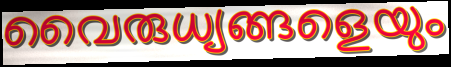
വൈരുധ്യങ്ങളെയും